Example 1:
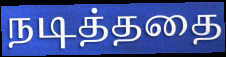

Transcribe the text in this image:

நடித்ததை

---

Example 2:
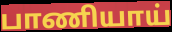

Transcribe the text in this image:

பாணியாய்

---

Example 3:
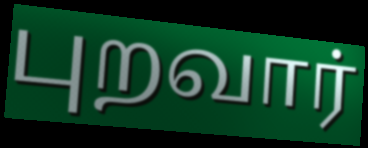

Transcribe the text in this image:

புறவார்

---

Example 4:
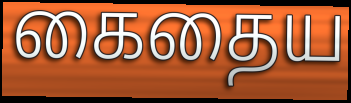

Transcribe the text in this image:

கைதைய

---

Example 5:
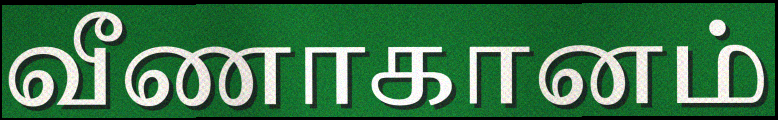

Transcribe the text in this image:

வீணாகானம்